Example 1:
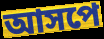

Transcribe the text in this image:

আসপে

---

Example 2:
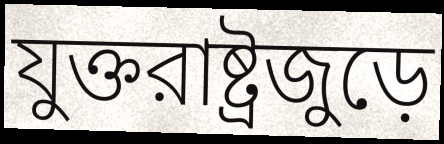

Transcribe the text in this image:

যুক্তরাষ্ট্রজুড়ে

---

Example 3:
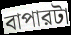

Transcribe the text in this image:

বাপারটা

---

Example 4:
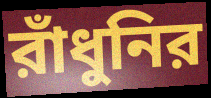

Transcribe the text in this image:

রাঁধুনির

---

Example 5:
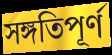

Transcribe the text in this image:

সঙ্গতিপূর্ণ